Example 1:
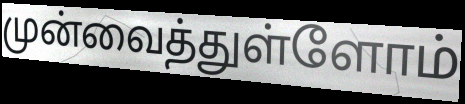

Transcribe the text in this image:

முன்வைத்துள்ளோம்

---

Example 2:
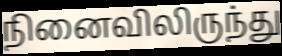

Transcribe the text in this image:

நினைவிலிருந்து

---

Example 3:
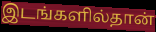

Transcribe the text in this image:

இடங்களில்தான்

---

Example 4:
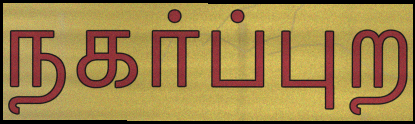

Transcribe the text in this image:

நகர்ப்புற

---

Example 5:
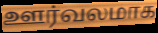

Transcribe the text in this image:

ஊர்வலமாக